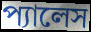
প্যালেস